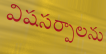
విషసర్పాలను